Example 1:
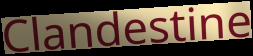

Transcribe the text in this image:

Clandestine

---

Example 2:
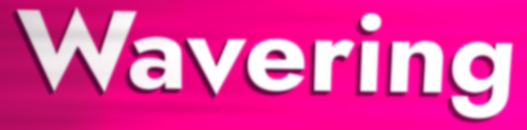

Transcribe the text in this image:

Wavering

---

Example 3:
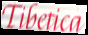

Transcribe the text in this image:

Tibetica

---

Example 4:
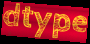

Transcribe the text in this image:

dtype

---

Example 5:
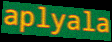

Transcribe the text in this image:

aplyala